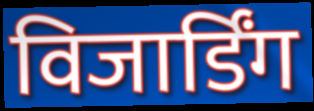
विजार्डिंग